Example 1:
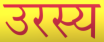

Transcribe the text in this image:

उरस्य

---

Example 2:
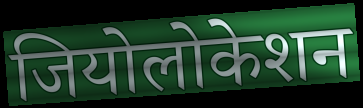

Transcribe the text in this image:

जियोलोकेशन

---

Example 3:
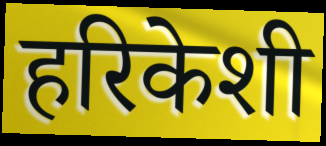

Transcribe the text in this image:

हरिकेशी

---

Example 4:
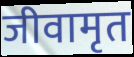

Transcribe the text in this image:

जीवामृत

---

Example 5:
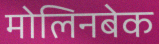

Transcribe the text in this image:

मोलिनबेक